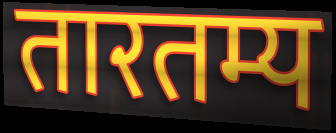
तारतम्य